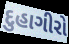
દુહાગીરો